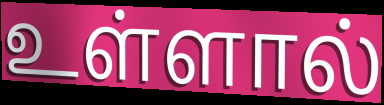
உள்ளால்